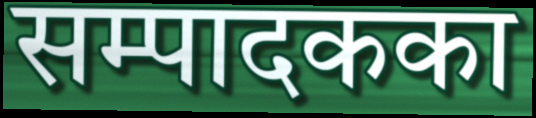
सम्पादकका